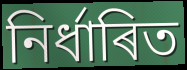
নিৰ্ধাৰিত